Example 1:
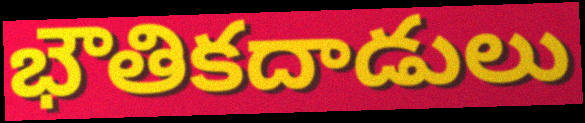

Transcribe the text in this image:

భౌతికదాడులు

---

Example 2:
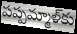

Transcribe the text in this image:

పప్పమ్మాళ్‌కు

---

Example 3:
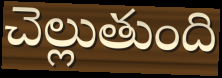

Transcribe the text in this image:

చెల్లుతుంది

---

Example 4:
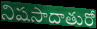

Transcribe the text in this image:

నిషసాదాతురో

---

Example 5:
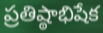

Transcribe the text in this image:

ప్రతిష్ఠాభిషేక